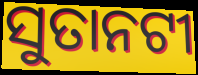
ସୁତାନଟୀ